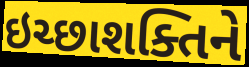
ઇચ્છાશક્તિને